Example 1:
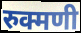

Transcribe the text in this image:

रुक्मणी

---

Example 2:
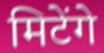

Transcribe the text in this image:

मिटेंगे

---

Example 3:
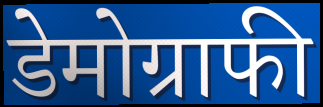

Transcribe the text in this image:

डेमोग्राफी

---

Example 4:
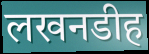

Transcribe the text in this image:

लखनडीह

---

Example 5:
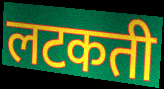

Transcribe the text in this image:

लटकती